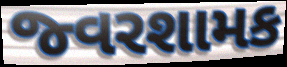
જ્વરશામક